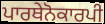
ਪਾਰਥੇਨੋਕਾਰਪੀ